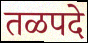
तळपदे